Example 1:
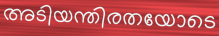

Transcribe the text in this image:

അടിയന്തിരതയോടെ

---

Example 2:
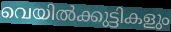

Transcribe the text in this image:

വെയിൽക്കുട്ടികളും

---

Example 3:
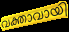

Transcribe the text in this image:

വക്താവായി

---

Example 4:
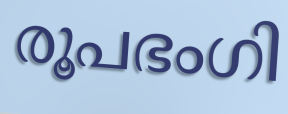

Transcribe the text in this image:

രൂപഭംഗി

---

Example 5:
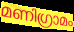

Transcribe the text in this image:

മണിഗ്രാമം